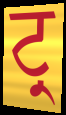
ਟ੍ਰ